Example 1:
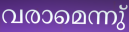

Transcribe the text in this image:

വരാമെന്നു്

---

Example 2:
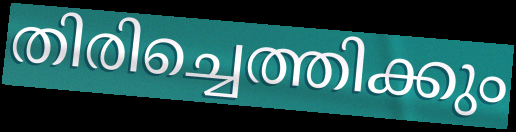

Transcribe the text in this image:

തിരിച്ചെത്തിക്കും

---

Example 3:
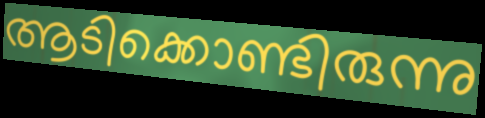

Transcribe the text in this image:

ആടിക്കൊണ്ടിരുന്നു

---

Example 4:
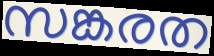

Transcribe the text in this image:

സങ്കരത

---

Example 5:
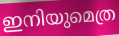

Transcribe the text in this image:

ഇനിയുമെത്ര